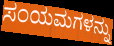
ಸಂಯಮಗಳನ್ನು